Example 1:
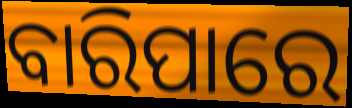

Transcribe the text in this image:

ବାରିପାରେ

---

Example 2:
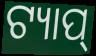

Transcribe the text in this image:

ଟ୍ୟାପ୍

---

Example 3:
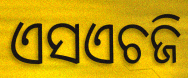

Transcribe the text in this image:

ଏସଏଚଜି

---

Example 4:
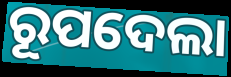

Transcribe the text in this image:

ରୂପଦେଲା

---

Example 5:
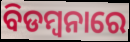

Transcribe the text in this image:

ବିଡମ୍ବନାରେ